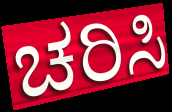
ಚರಿಸಿ